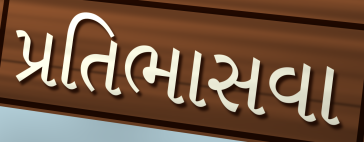
પ્રતિભાસવા